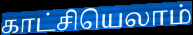
காட்சியெலாம்